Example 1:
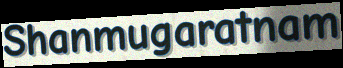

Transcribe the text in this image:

Shanmugaratnam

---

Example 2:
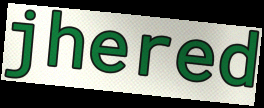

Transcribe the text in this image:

jhered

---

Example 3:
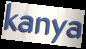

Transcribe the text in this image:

kanya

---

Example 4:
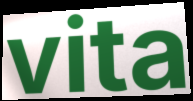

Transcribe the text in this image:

vita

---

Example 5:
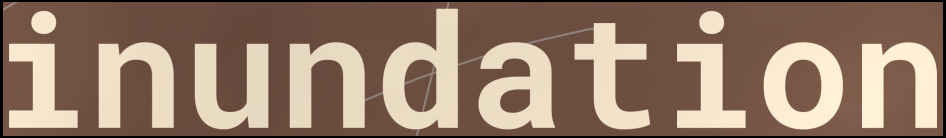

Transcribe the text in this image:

inundation